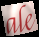
ale